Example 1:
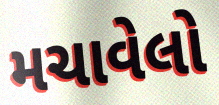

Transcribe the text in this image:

મચાવેલો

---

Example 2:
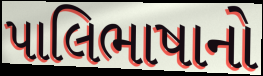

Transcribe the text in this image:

પાલિભાષાનો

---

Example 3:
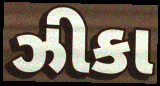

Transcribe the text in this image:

ઝીકા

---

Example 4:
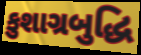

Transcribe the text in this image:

કુશાગ્રબુદ્ધિ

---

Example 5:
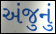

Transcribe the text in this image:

અંજુનું